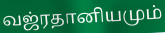
வஜ்ரதானியமும்